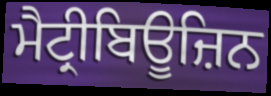
ਮੈਟ੍ਰੀਬਿਊਜ਼ਿਨ